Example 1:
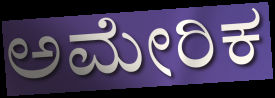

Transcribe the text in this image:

ಅಮೇರಿಕ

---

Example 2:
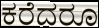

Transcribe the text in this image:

ಕರೆದರೂ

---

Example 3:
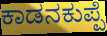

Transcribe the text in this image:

ಕಾಡನಕುಪ್ಪೆ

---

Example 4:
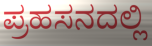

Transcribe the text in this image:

ಪ್ರಹಸನದಲ್ಲಿ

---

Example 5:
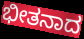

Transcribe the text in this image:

ಭೀತನಾದ